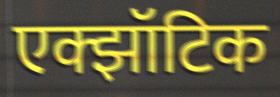
एक्झॉटिक